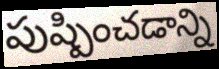
పుష్పించడాన్ని